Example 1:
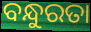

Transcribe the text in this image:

ବନ୍ଧୁରତା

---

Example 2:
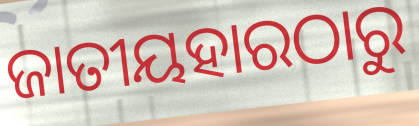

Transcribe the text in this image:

ଜାତୀୟହାରଠାରୁ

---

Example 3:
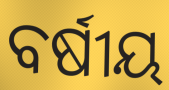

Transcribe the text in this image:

ବର୍ଷୀୟ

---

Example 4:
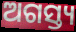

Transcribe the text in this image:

ଅଗସ୍ତ୍ୟ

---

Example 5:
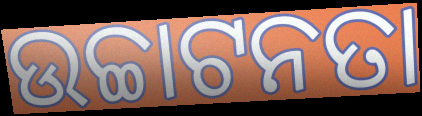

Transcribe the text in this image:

ଉଚ୍ଚାଟନତା